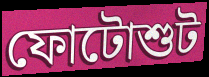
ফোটোশুট